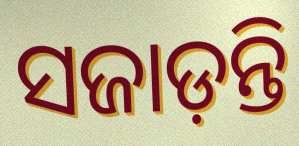
ସଜାଡ଼ନ୍ତି